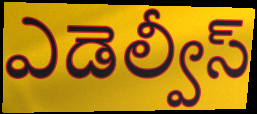
ఎడెల్వీస్